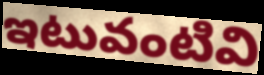
ఇటువంటివి